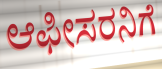
ಆಫೀಸರನಿಗೆ